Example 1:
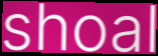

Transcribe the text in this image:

shoal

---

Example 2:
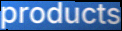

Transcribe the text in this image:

products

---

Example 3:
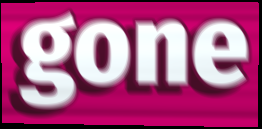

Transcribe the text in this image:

gone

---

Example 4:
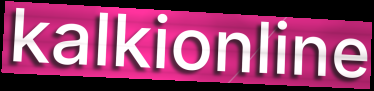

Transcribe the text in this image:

kalkionline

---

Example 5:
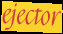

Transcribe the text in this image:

ejector